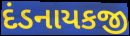
દંડનાયકજી